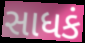
સાધકં